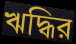
ঋদ্ধির